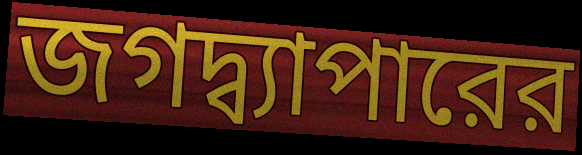
জগদ্ব্যাপারের